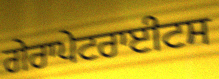
ਗੇਰਾਪੇਟਰਾਈਟਸ